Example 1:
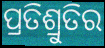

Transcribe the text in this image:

ପ୍ରତିଶ୍ରୁତିର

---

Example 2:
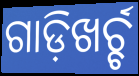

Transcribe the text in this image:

ଗାଡ଼ିଖର୍ଚ୍ଚ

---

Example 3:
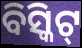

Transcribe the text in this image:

ବିସ୍କିଟ୍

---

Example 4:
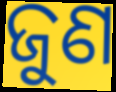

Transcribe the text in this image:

ଜୁଣ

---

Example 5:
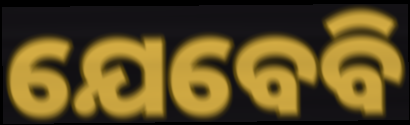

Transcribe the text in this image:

ଯେବେବି